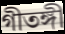
গীতঙ্গী